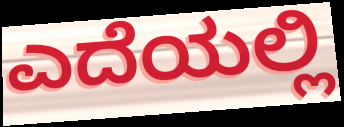
ಎದೆಯಲ್ಲಿ